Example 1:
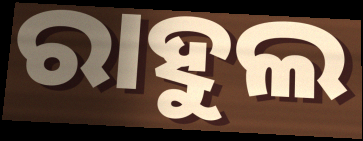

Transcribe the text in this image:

ରାହୁଲ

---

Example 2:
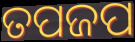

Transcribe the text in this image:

ତପଜପ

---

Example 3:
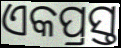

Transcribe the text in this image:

ଏକପ୍ରସ୍ତ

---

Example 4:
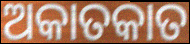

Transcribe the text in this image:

ଅକାତକାତ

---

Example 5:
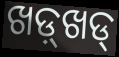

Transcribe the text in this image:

ଖଡ଼୍‌ଖଡ୍